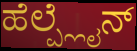
ಹೆಲ್ಪ್ಲೈನ್